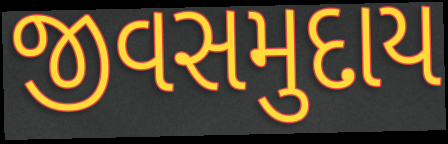
જીવસમુદાય